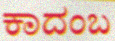
ಕಾದಂಬ